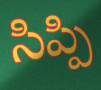
సిప్పి